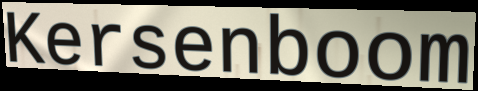
Kersenboom